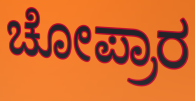
ಚೋಪ್ರಾರ